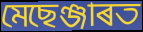
মেছেঞ্জাৰত